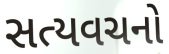
સત્યવચનો